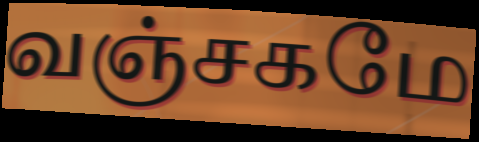
வஞ்சகமே